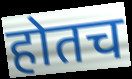
होतच